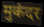
मुकंदर